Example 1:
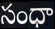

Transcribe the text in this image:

సంధా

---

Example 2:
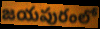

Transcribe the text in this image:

జయపురంలో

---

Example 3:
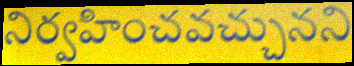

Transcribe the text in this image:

నిర్వహించవచ్చునని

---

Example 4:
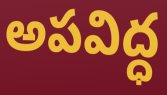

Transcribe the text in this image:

అపవిద్ధ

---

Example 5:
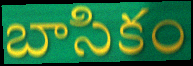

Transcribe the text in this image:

బాసికం